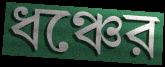
ধঞ্চের